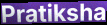
Pratiksha